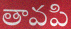
తావపి